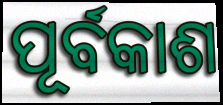
ପୂର୍ବକାଶ